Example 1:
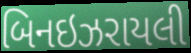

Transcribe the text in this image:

બિનઇઝરાયલી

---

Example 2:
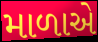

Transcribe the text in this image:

માળાએ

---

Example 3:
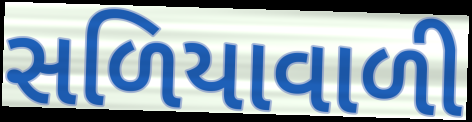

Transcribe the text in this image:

સળિયાવાળી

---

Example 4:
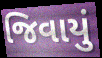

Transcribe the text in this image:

જિવાયું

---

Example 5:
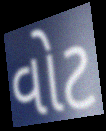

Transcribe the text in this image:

વોટ